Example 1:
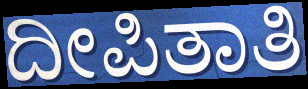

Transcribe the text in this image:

ದೀಪಿತಾತಿ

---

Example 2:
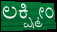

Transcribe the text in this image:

ಲಕ್ಷ್ಮೀಂ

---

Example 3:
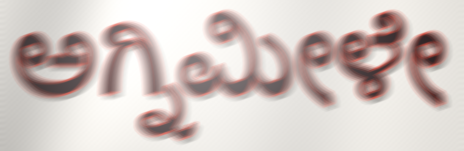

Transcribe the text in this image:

ಅಗ್ನಿಮೀಳೇ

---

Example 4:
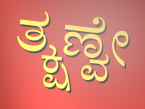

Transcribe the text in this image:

ತ್ಕ್ಷಣ್ವೇ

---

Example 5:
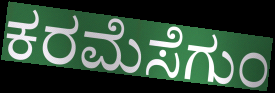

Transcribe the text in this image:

ಕರಮೆಸೆಗುಂ